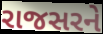
રાજસરને